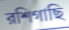
রশিগাছি